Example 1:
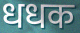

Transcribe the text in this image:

धधक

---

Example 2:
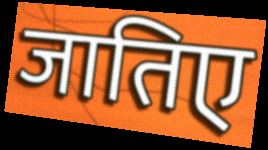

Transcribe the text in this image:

जातिए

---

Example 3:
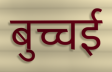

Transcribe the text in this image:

बुच्चई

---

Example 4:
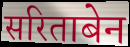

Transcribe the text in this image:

सरिताबेन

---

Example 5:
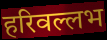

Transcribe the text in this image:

हरिवल्लभ